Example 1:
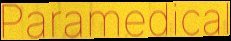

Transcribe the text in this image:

Paramedical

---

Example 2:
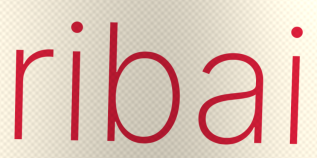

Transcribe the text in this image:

ribai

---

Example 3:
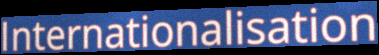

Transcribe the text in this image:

Internationalisation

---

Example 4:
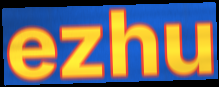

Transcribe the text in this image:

ezhu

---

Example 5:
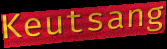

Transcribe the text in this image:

Keutsang